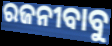
ରଜନୀବାବୁ